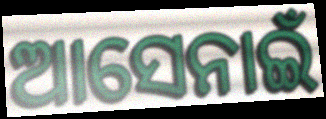
ଆସେନାଇଁ